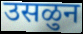
उसळुन